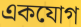
একযোগ